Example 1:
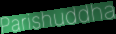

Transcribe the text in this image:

Parishuddha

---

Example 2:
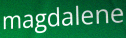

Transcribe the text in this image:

magdalene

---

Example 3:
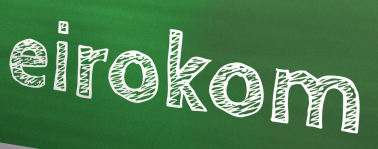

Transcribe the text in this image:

eirokom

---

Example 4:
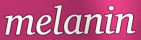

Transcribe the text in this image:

melanin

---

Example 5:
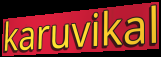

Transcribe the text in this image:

karuvikal